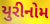
યુરીનોમ